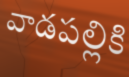
వాడపల్లికి